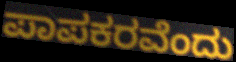
ಪಾಪಕರವೆಂದು